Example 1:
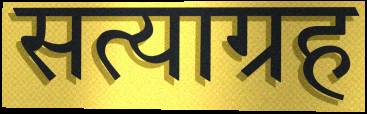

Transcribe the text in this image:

सत्याग्रह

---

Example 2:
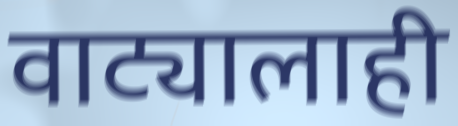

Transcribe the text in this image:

वाट्यालाही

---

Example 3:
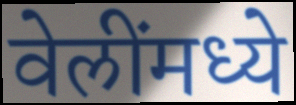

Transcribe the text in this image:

वेलींमध्ये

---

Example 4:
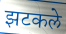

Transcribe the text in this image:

झटकले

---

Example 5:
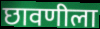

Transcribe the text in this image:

छावणीला